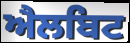
ਐਲਬਿਟ